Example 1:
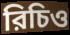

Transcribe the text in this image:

রিচিও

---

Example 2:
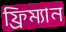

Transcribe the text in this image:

ফ্রিম্যান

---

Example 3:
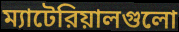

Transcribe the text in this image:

ম্যাটেরিয়ালগুলো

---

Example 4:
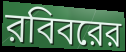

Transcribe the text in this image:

রবিবরের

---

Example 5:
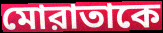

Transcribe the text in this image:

মোরাতাকে